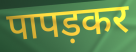
पापड़कर